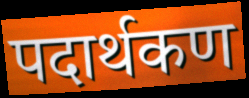
पदार्थकण